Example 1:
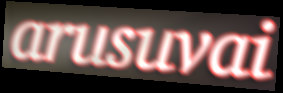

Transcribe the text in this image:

arusuvai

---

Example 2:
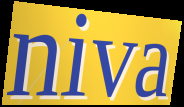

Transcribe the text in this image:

niva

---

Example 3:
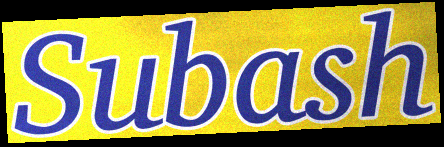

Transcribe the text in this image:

Subash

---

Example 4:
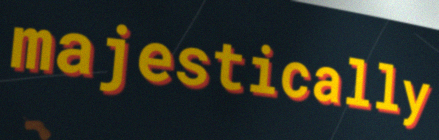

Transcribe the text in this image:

majestically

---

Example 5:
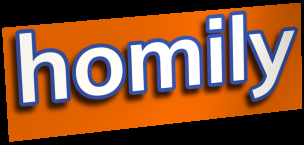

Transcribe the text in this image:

homily